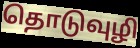
தொடுவுழி